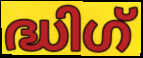
ദ്ധിഗ്